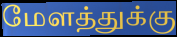
மேளத்துக்கு